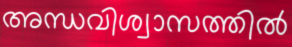
അന്ധവിശ്വാസത്തിൽ